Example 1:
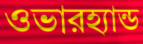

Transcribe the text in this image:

ওভারহ্যান্ড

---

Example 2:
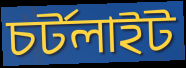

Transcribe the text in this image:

চর্টলাইট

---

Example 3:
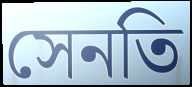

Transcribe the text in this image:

সেনতি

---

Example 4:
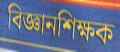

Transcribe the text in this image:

বিজ্ঞানশিক্ষক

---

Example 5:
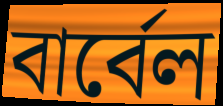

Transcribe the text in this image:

বার্বেল